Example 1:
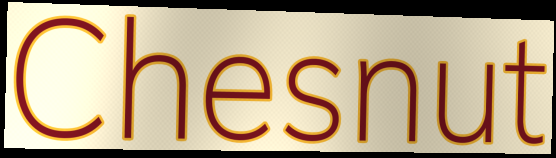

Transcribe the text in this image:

Chesnut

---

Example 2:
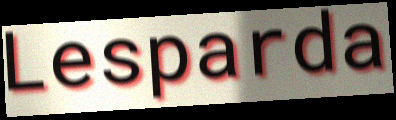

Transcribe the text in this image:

Lesparda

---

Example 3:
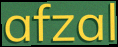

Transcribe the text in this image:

afzal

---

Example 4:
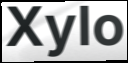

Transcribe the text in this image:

Xylo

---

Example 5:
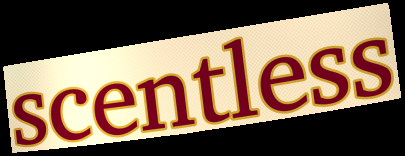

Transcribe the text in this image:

scentless